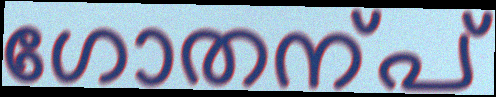
ഗോതന്പ്